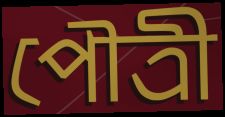
পৌত্রী